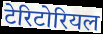
टेरिटोरियल